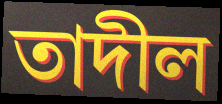
তাদীল